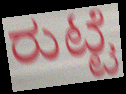
ರುಟ್ಟೆ